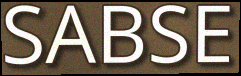
SABSE